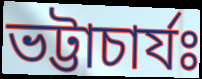
ভট্টাচাৰ্যঃ